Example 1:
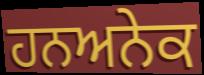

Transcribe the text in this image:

ਹਨਅਨੇਕ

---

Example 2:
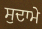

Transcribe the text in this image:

ਸੁਦਾਮੇ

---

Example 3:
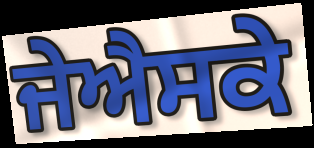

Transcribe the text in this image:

ਜੇਐਸਕੇ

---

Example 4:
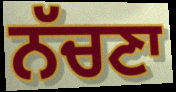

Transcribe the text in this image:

ਨੱਚਣਾ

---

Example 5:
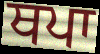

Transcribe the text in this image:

ਥਪਾ